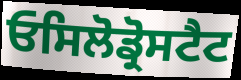
ਓਸਿਲੋਡ੍ਰੋਸਟੈਟ